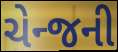
ચેન્જની